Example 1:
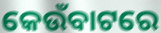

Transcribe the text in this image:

କେଉଁବାଟରେ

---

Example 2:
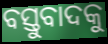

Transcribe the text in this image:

ବସ୍ତୁବାଦକୁ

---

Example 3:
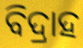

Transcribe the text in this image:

ବିଦ୍ରାହ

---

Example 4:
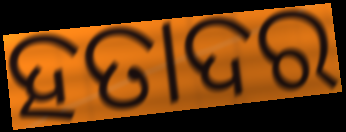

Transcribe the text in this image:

ହତାଦର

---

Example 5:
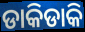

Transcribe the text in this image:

ଡାକିଡାକି